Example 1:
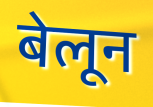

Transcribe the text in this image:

बेलून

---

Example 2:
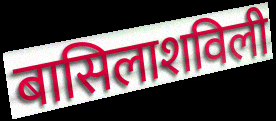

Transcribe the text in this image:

बासिलाशविली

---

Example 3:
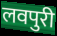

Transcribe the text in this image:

लवपुरी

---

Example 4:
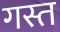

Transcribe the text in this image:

गस्त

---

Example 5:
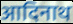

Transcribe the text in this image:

आदिनाथ